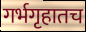
गर्भगृहातच